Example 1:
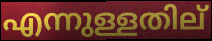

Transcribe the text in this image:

എന്നുള്ളതില്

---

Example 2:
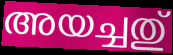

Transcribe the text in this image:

അയച്ചതു്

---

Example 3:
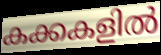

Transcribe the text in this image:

കക്കകളിൽ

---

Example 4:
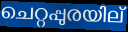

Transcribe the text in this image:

ചെറ്റപ്പുരയില്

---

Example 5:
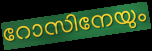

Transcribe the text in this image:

റോസിനേയും